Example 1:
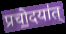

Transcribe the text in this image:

प्रचो॒दया॑त्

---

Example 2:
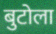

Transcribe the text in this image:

बुटोला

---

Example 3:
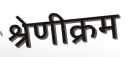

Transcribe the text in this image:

श्रेणीक्रम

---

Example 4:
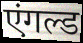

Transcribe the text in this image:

एंगल्ड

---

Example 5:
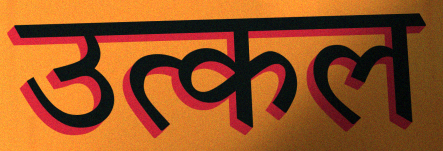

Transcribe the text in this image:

उत्कल